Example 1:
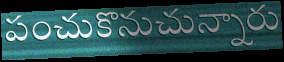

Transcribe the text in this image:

పంచుకొనుచున్నారు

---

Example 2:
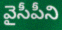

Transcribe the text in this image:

వైసీపీని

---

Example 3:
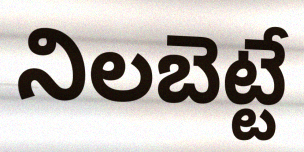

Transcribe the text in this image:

నిలబెట్టే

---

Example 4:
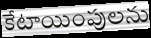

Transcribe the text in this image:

కేటాయింపులను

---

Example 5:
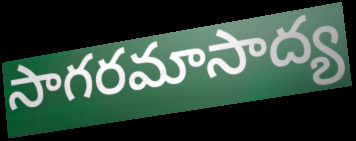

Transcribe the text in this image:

సాగరమాసాద్య